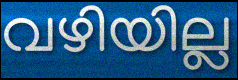
വഴിയില്ല